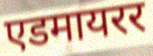
एडमायरर